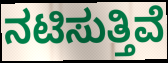
ನಟಿಸುತ್ತಿವೆ